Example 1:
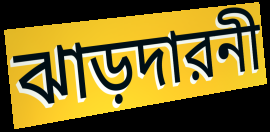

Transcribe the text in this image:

ঝাড়দারনী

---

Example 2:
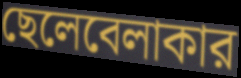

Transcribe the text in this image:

ছেলেবেলাকার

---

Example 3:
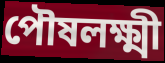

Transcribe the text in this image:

পৌষলক্ষ্মী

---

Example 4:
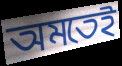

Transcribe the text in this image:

অমতেই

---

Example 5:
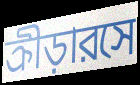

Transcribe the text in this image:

ক্রীড়ারসে